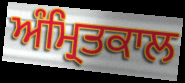
ਅੰਮ੍ਰਿਤਕਾਲ